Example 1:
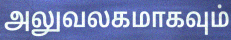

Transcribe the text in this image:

அலுவலகமாகவும்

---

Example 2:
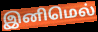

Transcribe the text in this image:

இனிமெல்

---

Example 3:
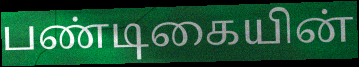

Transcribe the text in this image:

பண்டிகையின்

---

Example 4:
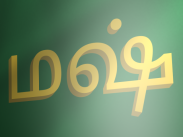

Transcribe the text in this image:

மஷ்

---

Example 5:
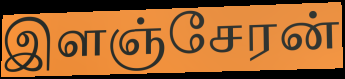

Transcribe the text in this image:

இளஞ்சேரன்